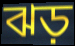
ঝড়